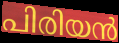
പിരിയൻ